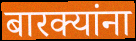
बारक्यांना